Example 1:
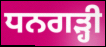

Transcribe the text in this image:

ਧਨਗੜ੍ਹੀ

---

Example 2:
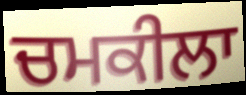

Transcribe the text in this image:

ਚਮਕੀਲਾ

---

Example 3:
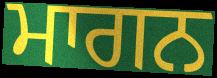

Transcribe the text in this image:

ਮਾਗਨ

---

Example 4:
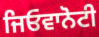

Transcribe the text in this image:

ਜਿਓਵਾਨੋਟੀ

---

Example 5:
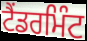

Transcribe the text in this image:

ਟੈਂਡਰਮਿੰਟ